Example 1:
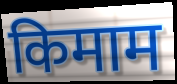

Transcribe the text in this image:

किमाम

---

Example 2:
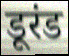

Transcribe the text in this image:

डूरंड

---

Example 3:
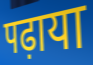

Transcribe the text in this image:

पढ़ाया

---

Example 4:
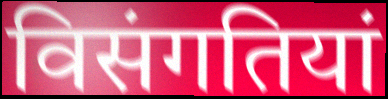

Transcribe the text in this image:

विसंगतियां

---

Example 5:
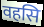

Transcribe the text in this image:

वहसि